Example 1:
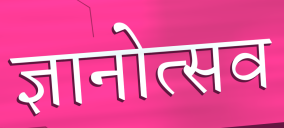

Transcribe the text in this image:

ज्ञानोत्सव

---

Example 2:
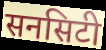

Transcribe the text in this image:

सनसिटी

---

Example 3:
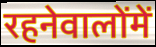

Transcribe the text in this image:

रहनेवालोंमें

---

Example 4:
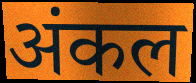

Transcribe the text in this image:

अंकल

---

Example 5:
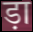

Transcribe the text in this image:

ड़ा